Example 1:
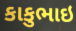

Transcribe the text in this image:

કાકુભાઇ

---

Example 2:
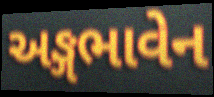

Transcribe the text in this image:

અઙ્ગભાવેન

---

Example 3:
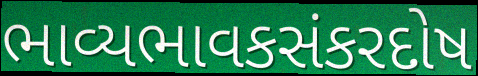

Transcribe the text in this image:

ભાવ્યભાવકસંકરદોષ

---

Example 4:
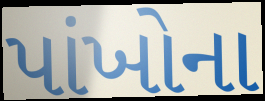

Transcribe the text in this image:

પાંખોના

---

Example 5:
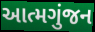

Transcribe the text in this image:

આત્મગુંજન